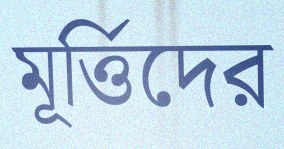
মূর্ত্তিদের